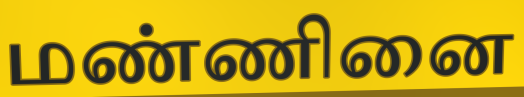
மண்ணினை